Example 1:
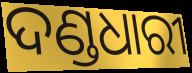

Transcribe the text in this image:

ଦଣ୍ଡଧାରୀ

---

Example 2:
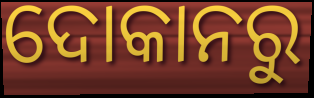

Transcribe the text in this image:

ଦୋକାନରୁ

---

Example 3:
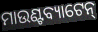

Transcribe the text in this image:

ମାଉଣ୍ଟବ୍ୟାଟେନ୍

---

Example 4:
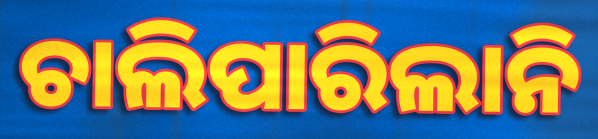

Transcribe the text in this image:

ଚାଲିପାରିଲାନି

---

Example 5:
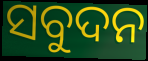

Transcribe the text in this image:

ସବୁଦନ